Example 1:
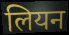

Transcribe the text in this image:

लियन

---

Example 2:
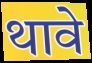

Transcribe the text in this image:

थावे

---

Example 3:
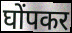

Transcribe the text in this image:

घोंपकर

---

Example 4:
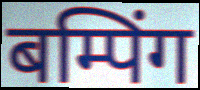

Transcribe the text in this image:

बम्पिंग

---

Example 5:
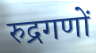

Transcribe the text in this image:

रुद्रगणों